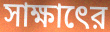
সাক্ষাৎের